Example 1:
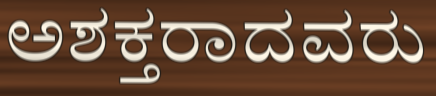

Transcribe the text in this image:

ಅಶಕ್ತರಾದವರು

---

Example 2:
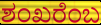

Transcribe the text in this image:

ಶಂಖರೆಂಬ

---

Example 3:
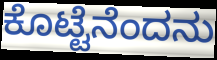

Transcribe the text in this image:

ಕೊಟ್ಟೆನೆಂದನು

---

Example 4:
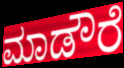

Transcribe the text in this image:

ಮಾಡೌರೆ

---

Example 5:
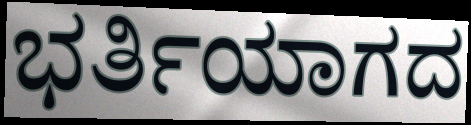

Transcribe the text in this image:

ಭರ್ತಿಯಾಗದ